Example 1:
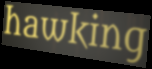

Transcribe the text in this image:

hawking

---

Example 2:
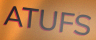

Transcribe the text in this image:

ATUFS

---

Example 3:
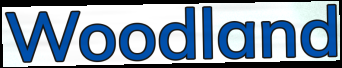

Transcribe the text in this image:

Woodland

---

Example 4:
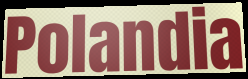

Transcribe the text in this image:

Polandia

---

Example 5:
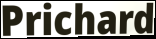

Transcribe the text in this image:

Prichard